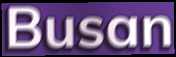
Busan